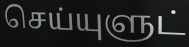
செய்யுளுட்